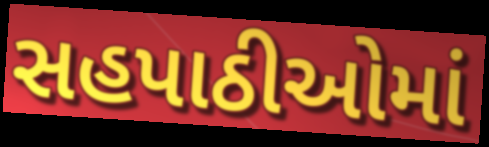
સહપાઠીઓમાં